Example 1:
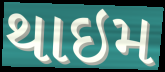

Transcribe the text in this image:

થાઇમ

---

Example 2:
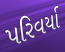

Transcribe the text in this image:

પરિવર્યા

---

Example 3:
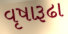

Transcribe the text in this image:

વૃષારૂઢા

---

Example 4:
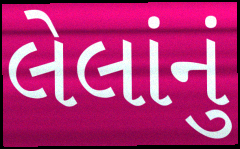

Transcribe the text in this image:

લેલાંનું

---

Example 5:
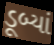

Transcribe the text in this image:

ડૂબ્યાં